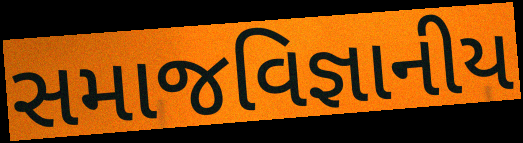
સમાજવિજ્ઞાનીય